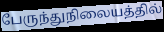
பேருந்துநிலையத்தில்